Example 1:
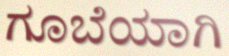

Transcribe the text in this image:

ಗೂಬೆಯಾಗಿ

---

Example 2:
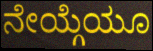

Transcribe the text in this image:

ನೇಯ್ಗೆಯೂ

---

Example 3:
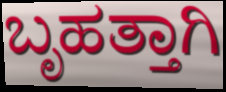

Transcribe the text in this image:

ಬೃಹತ್ತಾಗಿ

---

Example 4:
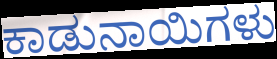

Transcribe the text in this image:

ಕಾಡುನಾಯಿಗಳು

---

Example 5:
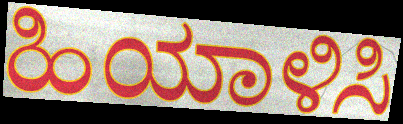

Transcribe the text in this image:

ಹಿಯಾಳಿಸಿ